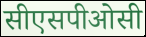
सीएसपीओसी